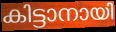
കിട്ടാനായി